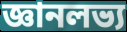
জ্ঞানলভ্য